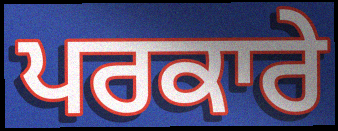
ਪਰਕਾਰੇ